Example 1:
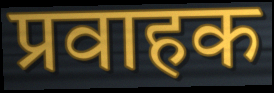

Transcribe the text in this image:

प्रवाहक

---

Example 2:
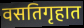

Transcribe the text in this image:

वसतिगृहात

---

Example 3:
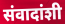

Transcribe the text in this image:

संवादांशी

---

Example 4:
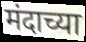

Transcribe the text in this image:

मंदाच्या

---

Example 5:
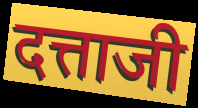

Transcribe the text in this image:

दत्ताजी